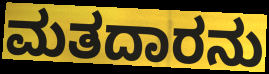
ಮತದಾರನು